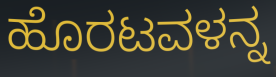
ಹೊರಟವಳನ್ನ